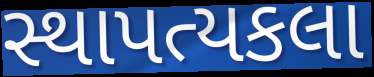
સ્થાપત્યકલા